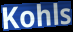
Kohls